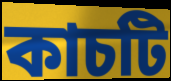
কাচটি